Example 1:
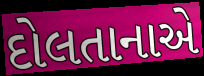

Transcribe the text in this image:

દોલતાનાએ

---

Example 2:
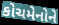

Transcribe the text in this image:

કોચમેનોને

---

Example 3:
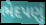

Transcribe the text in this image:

ભેદપણું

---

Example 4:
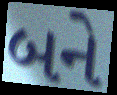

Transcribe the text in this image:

બને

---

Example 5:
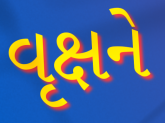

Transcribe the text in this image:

વૃક્ષને